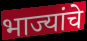
भाज्यांचे